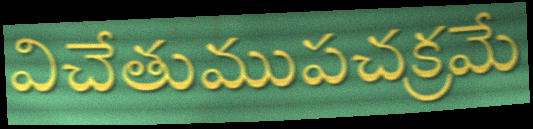
విచేతుముపచక్రమే